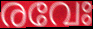
രവേഃ